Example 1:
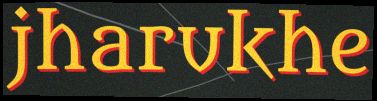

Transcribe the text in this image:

jharukhe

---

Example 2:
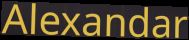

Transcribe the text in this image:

Alexandar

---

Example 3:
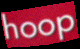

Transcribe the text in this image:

hoop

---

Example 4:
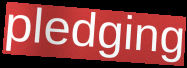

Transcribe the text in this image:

pledging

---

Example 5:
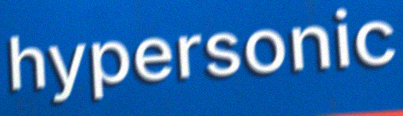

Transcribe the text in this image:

hypersonic